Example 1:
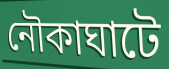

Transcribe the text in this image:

নৌকাঘাটে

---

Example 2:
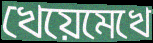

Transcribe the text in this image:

খেয়েমেখে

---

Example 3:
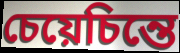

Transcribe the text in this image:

চেয়েচিন্তে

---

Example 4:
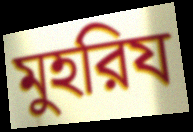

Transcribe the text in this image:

মুহরিয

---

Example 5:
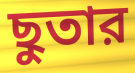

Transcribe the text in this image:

ছুতার